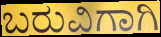
ಬರುವಿಗಾಗಿ